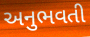
અનુભવતી